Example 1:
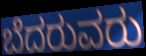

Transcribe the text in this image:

ಬೆದರುವರು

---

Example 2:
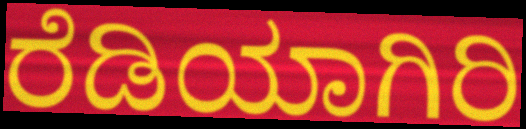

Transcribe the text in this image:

ರೆಡಿಯಾಗಿರಿ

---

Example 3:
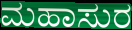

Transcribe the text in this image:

ಮಹಾಸುರ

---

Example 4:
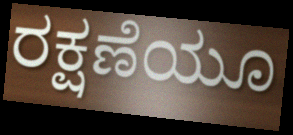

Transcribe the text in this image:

ರಕ್ಷಣೆಯೂ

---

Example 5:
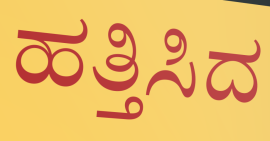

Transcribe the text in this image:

ಹತ್ತಿಸಿದ